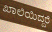
ಖಾಲಿಯಿದ್ದರೆ